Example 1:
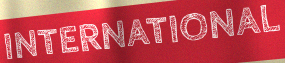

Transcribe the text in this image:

INTERNATIONAL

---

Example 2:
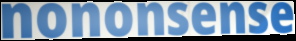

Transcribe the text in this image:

nononsense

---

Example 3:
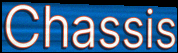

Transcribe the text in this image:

Chassis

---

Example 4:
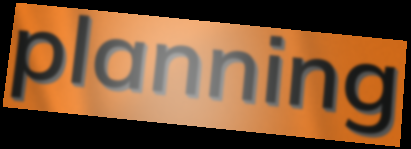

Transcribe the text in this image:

planning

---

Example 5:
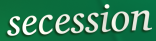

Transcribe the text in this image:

secession